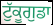
ਟੁੱਕੂਗੁਡਾ